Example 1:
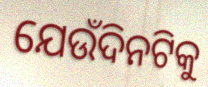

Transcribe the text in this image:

ଯେଉଁଦିନଟିକୁ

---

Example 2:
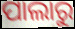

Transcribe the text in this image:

ପାଲାରୁ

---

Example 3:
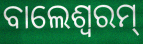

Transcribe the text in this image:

ବାଲେଶ୍ବରମ୍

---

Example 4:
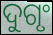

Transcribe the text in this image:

ଦୁଗୃଂ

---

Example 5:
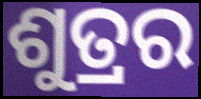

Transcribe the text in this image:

ଶୁତ୍ରର